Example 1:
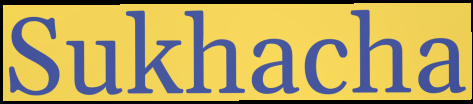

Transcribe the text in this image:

Sukhacha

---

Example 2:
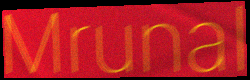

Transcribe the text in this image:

Mrunal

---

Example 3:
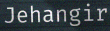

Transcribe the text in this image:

Jehangir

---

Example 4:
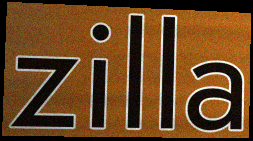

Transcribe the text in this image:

zilla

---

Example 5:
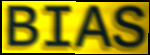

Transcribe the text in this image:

BIAS